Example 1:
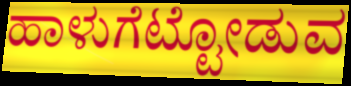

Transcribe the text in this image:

ಹಾಳುಗೆಟ್ಟೋಡುವ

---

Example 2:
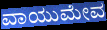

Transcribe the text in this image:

ವಾಯುಮೇವ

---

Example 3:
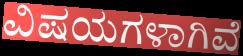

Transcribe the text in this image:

ವಿಷಯಗಳಾಗಿವೆ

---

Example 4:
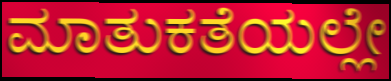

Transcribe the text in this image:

ಮಾತುಕತೆಯಲ್ಲೇ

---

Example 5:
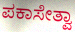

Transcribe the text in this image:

ಪಕಾಸೇತ್ವಾ